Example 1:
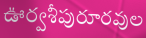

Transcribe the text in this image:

ఊర్వశీపురూరవుల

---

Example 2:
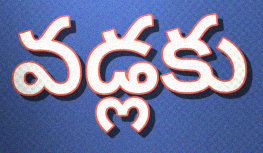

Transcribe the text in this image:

వడ్లకు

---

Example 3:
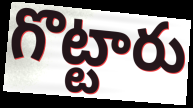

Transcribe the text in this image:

గొట్టారు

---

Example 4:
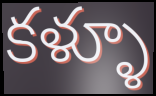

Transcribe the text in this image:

కళ్ళూ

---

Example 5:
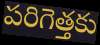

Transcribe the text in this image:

పరిగెత్తకు